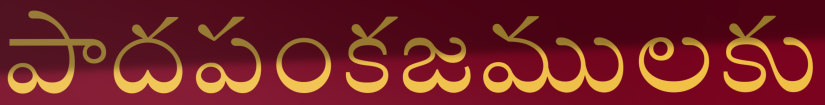
పాదపంకజములకు